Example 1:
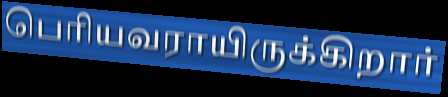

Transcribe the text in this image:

பெரியவராயிருக்கிறார்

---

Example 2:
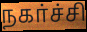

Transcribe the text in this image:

நகர்ச்சி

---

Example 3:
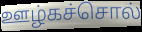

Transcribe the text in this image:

ஊழ்கச்சொல்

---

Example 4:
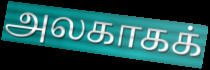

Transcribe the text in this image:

அலகாகக்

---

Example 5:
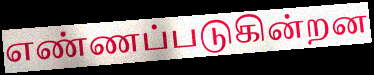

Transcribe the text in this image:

எண்ணப்படுகின்றன